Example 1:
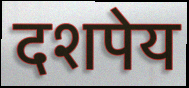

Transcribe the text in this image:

दशपेय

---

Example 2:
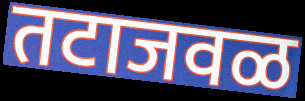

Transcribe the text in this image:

तटाजवळ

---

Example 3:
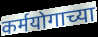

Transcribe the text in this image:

कर्मयोगाच्या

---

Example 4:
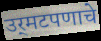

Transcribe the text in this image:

उर्मटपणाचे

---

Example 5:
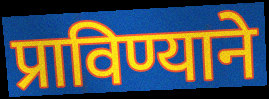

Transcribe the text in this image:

प्राविण्याने